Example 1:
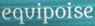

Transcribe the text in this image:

equipoise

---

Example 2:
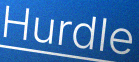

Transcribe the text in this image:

Hurdle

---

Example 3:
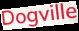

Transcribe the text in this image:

Dogville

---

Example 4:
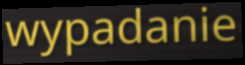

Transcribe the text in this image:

wypadanie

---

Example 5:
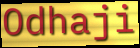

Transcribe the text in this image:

Odhaji